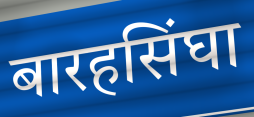
बारहसिंघा